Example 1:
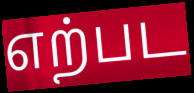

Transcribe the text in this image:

எற்பட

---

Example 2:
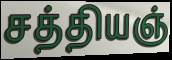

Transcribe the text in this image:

சத்தியஞ்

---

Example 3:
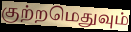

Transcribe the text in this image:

குற்றமெதுவும்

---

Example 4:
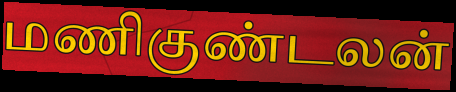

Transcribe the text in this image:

மணிகுண்டலன்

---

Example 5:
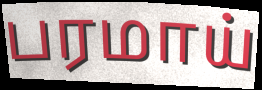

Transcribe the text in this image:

பரமாய்